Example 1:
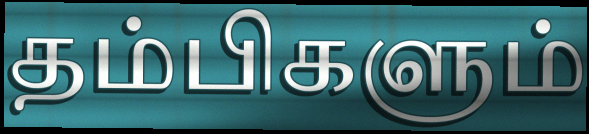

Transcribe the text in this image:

தம்பிகளும்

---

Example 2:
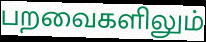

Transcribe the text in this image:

பறவைகளிலும்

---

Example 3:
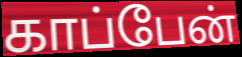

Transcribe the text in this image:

காப்பேன்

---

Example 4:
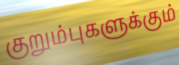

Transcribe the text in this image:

குறும்புகளுக்கும்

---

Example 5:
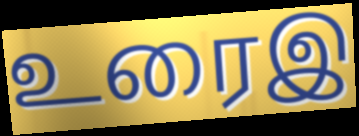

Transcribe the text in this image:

உரைஇ